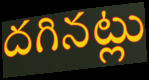
దగినట్లు